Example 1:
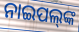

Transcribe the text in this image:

ନାଇପଲ୍‍ଙ୍କ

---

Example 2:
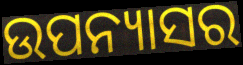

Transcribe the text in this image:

ଉପନ୍ୟାସର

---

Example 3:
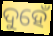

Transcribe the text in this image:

ଦୁହେଁ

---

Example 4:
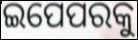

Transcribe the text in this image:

ଇପେପରକୁ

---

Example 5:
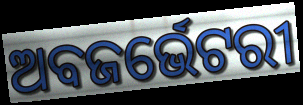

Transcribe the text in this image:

ଅବଜର୍ଭେଟରୀ